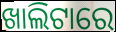
ଖାଲିଟାରେ